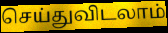
செய்துவிடலாம்